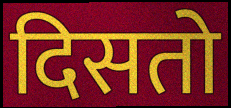
दिसतो